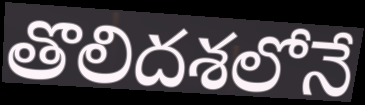
తొలిదశలోనే